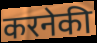
करनेकी